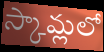
స్కామ్లలో